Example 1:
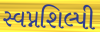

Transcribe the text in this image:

સ્વપ્નશિલ્પી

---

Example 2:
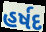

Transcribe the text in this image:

હર્ષદ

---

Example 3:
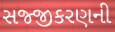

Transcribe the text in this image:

સજ્જીકરણની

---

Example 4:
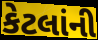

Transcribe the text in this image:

કેટલાંની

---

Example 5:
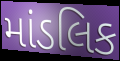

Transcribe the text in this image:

માંડલિક